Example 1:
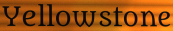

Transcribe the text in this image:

Yellowstone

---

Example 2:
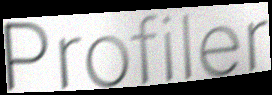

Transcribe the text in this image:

Profiler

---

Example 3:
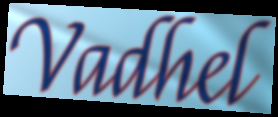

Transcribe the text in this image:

Vadhel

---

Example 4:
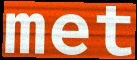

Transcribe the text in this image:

met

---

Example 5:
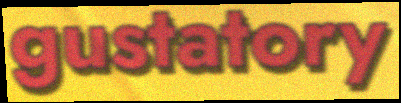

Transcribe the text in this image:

gustatory